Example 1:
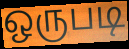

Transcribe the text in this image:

ஒருபடி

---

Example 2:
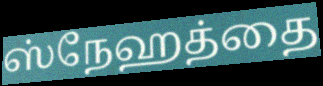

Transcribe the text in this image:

ஸ்நேஹத்தை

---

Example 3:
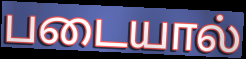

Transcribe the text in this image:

படையால்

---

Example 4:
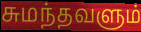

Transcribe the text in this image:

சுமந்தவளும்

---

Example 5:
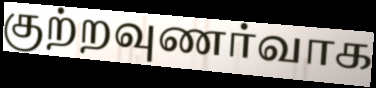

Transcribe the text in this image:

குற்றவுணர்வாக